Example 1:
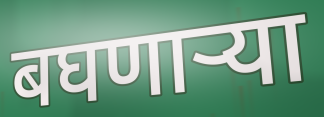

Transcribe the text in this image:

बघणाऱ्या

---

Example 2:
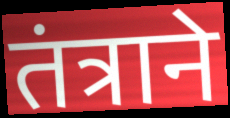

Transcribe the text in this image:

तंत्राने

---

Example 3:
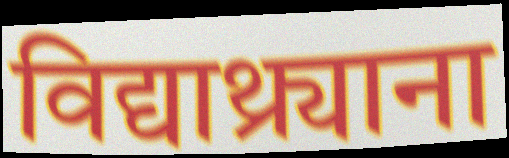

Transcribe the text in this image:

विद्याथ्र्याना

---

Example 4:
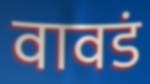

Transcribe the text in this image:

वावडं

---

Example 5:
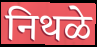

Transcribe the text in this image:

निथळे